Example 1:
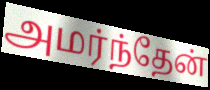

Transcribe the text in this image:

அமர்ந்தேன்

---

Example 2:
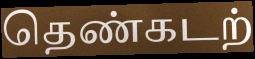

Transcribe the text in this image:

தெண்கடற்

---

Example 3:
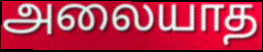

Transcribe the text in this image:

அலையாத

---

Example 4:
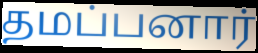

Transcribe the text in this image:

தமப்பனார்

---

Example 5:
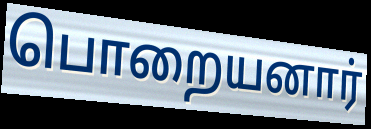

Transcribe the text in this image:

பொறையனார்